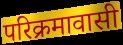
परिक्रमावासी